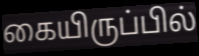
கையிருப்பில்